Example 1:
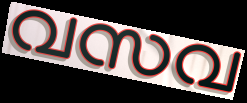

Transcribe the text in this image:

വസവ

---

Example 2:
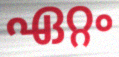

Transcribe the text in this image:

ഏറ്റം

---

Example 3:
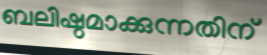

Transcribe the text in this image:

ബലിഷ്ഠമാക്കുന്നതിന്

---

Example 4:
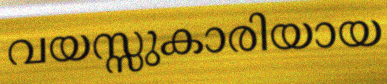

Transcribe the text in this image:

വയസ്സുകാരിയായ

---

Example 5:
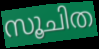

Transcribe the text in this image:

സൂചിത